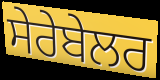
ਸੇਰੇਬੇਲਰ